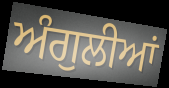
ਅੰਗੁਲੀਆਂ